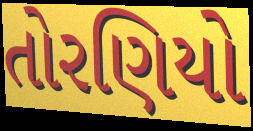
તોરણિયો